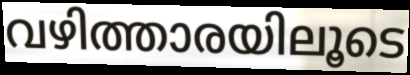
വഴിത്താരയിലൂടെ